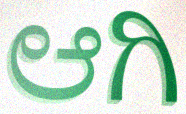
ಆಗಿ